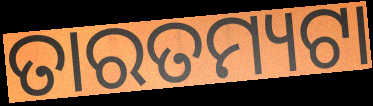
ତାରତମ୍ୟଟା